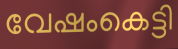
വേഷംകെട്ടി